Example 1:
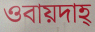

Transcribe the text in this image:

ওবায়দাহ্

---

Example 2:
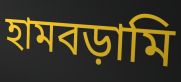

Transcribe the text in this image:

হামবড়ামি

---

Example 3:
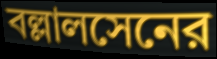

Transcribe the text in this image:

বল্লালসেনের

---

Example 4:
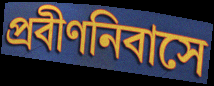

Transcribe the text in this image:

প্রবীণনিবাসে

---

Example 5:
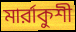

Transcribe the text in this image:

মার্রাকুশী